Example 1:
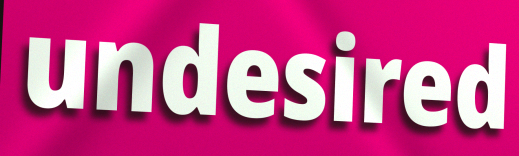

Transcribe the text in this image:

undesired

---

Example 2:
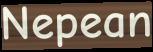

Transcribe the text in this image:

Nepean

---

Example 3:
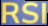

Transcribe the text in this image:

RSI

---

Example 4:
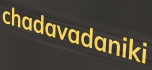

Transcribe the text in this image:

chadavadaniki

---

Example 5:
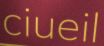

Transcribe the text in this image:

ciueil